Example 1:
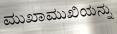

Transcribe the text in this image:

ಮುಖಾಮುಖಿಯನ್ನು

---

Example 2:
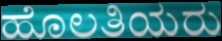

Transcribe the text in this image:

ಹೊಲತಿಯರು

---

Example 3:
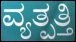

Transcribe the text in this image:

ವ್ಯತ್ಪತ್ತಿ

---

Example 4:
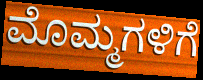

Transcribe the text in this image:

ಮೊಮ್ಮಗಳಿಗೆ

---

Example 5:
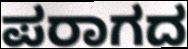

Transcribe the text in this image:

ಪರಾಗದ